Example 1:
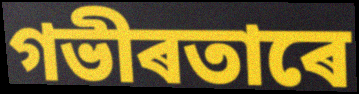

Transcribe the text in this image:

গভীৰতাৰে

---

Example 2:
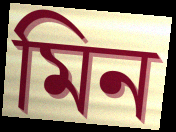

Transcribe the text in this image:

মিন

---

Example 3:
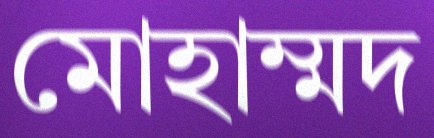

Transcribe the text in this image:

মোহাম্মদ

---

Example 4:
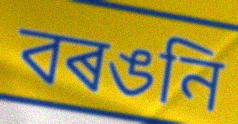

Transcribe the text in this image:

বৰঙনি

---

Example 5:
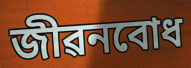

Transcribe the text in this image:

জীৱনবোধ